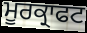
ਮੂਰਕ੍ਰਾਫਟ